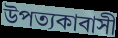
উপত্যকাবাসী